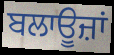
ਬਲਾਊਜ਼ਾਂ